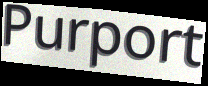
Purport